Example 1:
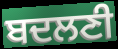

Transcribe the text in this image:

ਬਦਲਣੀ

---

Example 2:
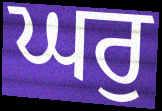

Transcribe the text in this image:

ਘਰੁ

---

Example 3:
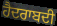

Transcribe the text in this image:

ਹੈਦਰਾਬਦੀ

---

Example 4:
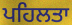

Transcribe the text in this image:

ਪਹਿਲਤਾ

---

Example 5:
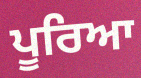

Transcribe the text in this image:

ਪੂਰਿਆ